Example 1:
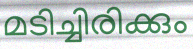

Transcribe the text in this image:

മടിച്ചിരിക്കും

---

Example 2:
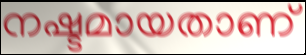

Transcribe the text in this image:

നഷ്ടമായതാണ്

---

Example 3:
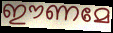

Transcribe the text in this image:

ഈണമേ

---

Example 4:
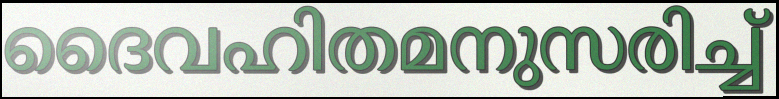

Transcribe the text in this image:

ദൈവഹിതമനുസരിച്ച്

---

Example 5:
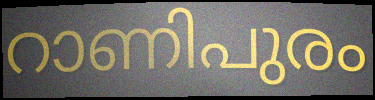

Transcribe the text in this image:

റാണിപുരം